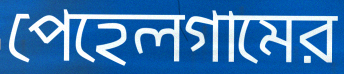
পেহেলগামের